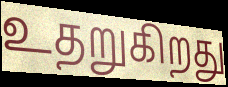
உதறுகிறது